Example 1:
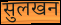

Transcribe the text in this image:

सुलखन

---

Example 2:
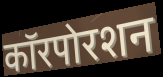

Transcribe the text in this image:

कॉरपोरशन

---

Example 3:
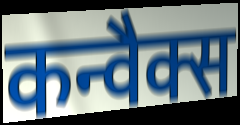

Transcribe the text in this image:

कन्वैक्स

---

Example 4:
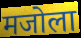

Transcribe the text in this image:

मजोला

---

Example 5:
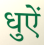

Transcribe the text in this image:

धुऐं